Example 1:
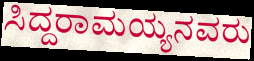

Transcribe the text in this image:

ಸಿದ್ದರಾಮಯ್ಯನವರು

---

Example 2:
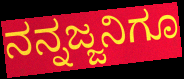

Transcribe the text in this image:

ನನ್ನಜ್ಜನಿಗೂ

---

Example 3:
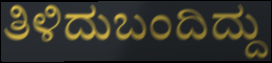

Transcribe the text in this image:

ತಿಳಿದುಬಂದಿದ್ದು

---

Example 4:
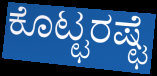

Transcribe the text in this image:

ಕೊಟ್ಟರಷ್ಟೆ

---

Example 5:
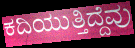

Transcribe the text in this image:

ಕದಿಯುತ್ತಿದ್ದೆವು